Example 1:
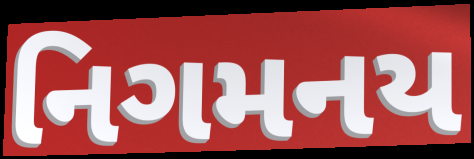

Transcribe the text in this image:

નિગમનય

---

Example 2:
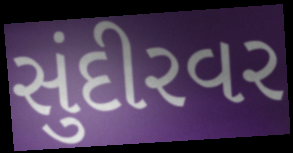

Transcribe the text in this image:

સુંદીરવર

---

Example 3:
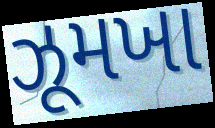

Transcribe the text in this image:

ઝૂમખા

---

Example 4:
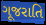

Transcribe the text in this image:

ગૂજરાતિ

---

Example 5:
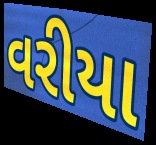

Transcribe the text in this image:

વરીયા